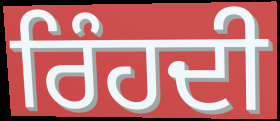
ਰਿੰਹਦੀ